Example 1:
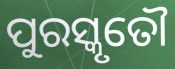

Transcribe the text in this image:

ପୁରସ୍କୃତୌ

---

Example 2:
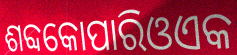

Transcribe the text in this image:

ଶବ୍ଦକୋପାରିଓଏକ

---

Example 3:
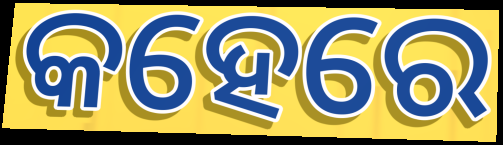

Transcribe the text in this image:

କହେରେ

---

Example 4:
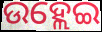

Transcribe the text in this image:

ଉହ୍ଲେଇ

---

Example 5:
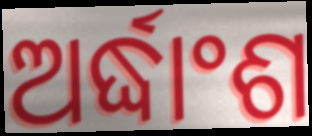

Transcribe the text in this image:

ଅର୍ଦ୍ଧାଂଶ